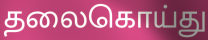
தலைகொய்து